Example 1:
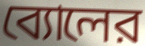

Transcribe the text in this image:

ব্যোলের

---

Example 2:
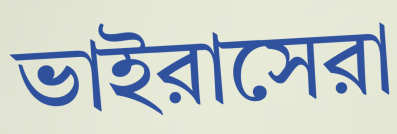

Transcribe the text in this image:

ভাইরাসেরা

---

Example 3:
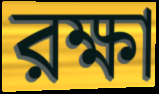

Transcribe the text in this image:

রক্ষা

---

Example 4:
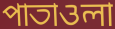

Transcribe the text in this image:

পাতাওলা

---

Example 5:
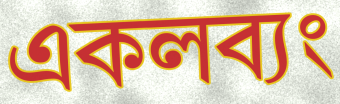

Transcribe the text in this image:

একলব্যং